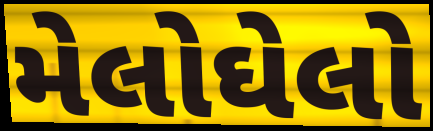
મેલોઘેલો